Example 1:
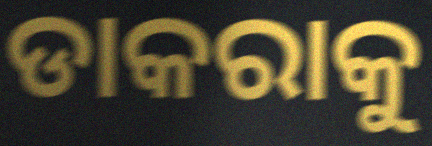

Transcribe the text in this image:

ଡାକରାକୁ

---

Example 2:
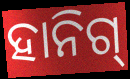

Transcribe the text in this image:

ହାନିଗ୍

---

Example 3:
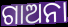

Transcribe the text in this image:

ଗାଅନା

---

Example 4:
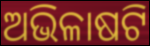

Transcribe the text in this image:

ଅଭିଳାଷଟି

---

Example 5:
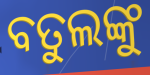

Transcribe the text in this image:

ବତୁଲଙ୍କୁ